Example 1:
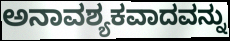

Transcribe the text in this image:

ಅನಾವಶ್ಯಕವಾದವನ್ನು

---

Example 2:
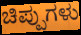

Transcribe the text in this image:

ಚಿಪ್ಪುಗಳು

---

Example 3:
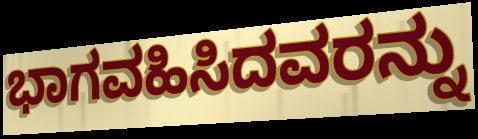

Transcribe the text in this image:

ಭಾಗವಹಿಸಿದವರನ್ನು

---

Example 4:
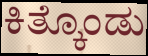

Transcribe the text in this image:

ಕಿತ್ಕೊಂಡು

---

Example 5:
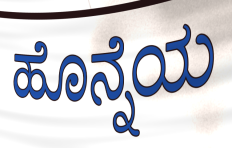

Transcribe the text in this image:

ಹೊನ್ನೆಯ